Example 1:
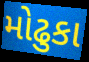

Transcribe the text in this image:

મોઢુકા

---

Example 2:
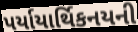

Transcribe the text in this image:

પર્યાયાર્થિકનયની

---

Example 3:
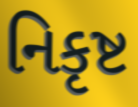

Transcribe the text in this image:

નિકૃષ્ટ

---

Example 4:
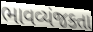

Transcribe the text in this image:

ભાવવ્યંજકતા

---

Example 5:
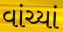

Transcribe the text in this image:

વાંચ્યાં